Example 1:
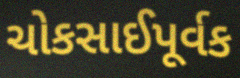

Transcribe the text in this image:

ચોકસાઈપૂર્વક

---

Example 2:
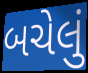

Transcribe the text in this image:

બચેલું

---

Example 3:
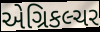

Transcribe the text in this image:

એગ્રિકલ્ચર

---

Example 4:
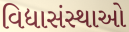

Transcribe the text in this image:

વિદ્યાસંસ્થાઓ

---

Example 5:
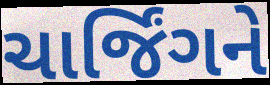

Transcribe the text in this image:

ચાર્જિંગને